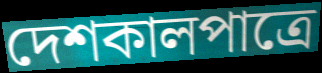
দেশকালপাত্রে